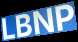
LBNP